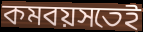
কমবয়সতেই